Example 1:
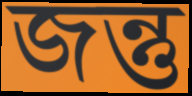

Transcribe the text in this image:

জন্তু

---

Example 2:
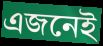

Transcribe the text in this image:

এজনেই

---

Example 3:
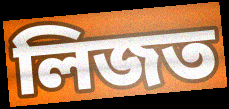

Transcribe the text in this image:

লিজত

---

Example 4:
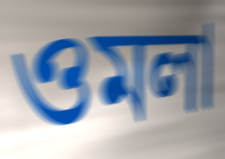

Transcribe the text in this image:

ওমলা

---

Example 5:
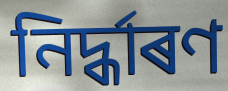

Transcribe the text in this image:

নিৰ্দ্ধাৰণ